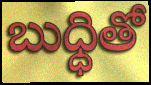
బుధ్ధితో